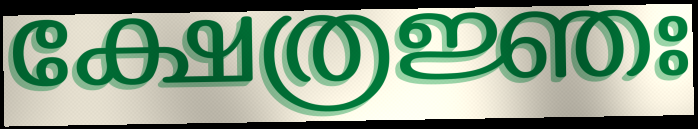
ക്ഷേത്രജ്ഞഃ